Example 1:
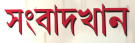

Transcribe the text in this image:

সংবাদখান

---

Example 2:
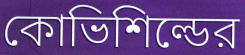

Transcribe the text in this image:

কোভিশিল্ডের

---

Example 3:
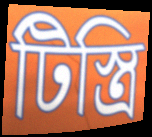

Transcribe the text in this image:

টিস্ত্রি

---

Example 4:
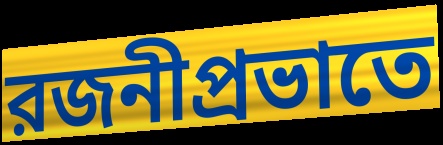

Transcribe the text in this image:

রজনীপ্রভাতে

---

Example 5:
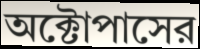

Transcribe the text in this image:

অক্টোপাসের